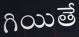
గియితే